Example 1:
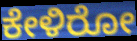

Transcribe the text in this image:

ಕೇಳಿರೋ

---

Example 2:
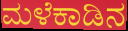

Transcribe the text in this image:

ಮಳೆಕಾಡಿನ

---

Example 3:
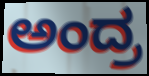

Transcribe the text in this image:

ಅಂದ್ರ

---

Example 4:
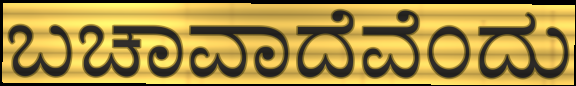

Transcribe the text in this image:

ಬಚಾವಾದೆವೆಂದು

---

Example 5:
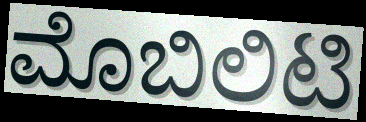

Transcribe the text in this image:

ಮೊಬಿಲಿಟಿ